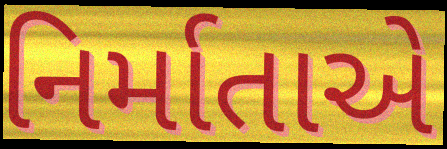
નિર્માતાએ